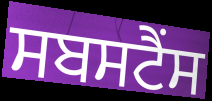
ਸਬਸਟੈਂਸ